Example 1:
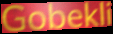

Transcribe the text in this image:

Gobekli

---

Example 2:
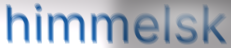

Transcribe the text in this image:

himmelsk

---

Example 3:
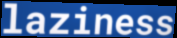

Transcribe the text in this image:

laziness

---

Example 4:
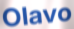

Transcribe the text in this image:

Olavo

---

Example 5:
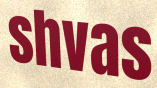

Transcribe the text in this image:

shvas